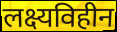
लक्ष्यविहीन